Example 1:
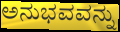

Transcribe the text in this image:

ಅನುಭವವನ್ನು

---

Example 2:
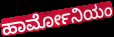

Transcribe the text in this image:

ಹಾರ್ಮೋನಿಯಂ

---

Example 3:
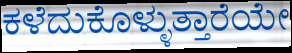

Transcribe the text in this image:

ಕಳೆದುಕೊಳ್ಳುತ್ತಾರೆಯೇ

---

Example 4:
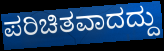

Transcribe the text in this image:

ಪರಿಚಿತವಾದದ್ದು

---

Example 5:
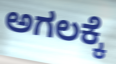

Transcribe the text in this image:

ಅಗಲಕ್ಕೆ